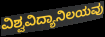
ವಿಶ್ವವಿದ್ಯಾನಿಲಯವು